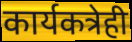
कार्यकत्रेही